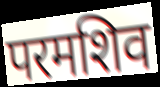
परमशिव